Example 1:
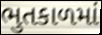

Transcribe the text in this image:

ભુતકાળમાં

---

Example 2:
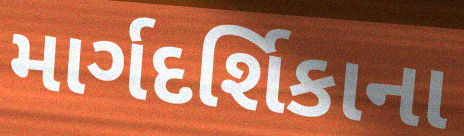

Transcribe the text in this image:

માર્ગદર્શિકાના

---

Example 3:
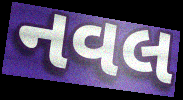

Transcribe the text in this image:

નવલ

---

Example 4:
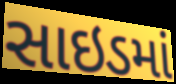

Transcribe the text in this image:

સાઇડમાં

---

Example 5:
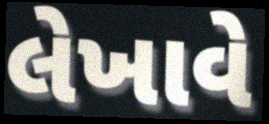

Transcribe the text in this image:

લેખાવે